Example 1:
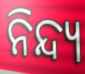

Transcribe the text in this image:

ନିନ୍ଦ୍ୟ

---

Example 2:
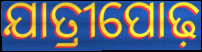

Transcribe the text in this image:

ଯାତ୍ରୀପୋଢ଼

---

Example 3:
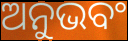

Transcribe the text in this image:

ଅନୁଭବଂ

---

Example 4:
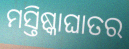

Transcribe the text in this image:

ମସ୍ତିଷ୍କାଘାତର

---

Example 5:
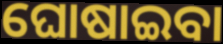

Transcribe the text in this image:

ଘୋଷାଇବା